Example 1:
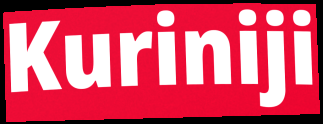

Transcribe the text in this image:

Kuriniji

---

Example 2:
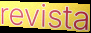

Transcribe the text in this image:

revista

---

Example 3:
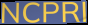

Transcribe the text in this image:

NCPRI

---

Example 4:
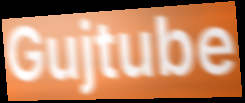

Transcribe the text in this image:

Gujtube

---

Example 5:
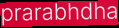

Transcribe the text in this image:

prarabhdha